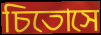
চিতোসে